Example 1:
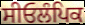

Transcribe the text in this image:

ਸੀਓਲੰਪਿਕ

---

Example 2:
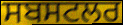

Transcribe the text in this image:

ਸਬਸਟਲਰ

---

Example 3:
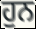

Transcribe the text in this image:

ਹੁਨ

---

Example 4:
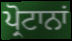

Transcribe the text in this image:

ਪ੍ਰੋਟਾਨਾਂ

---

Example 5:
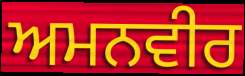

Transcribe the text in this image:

ਅਮਨਵੀਰ